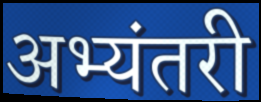
अभ्यंतरी